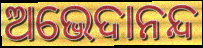
ଅଭେଦାନନ୍ଦ